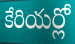
కేరియర్లో